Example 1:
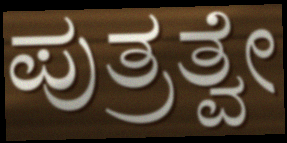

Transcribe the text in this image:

ಪುತ್ರತ್ವೇ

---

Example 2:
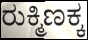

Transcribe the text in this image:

ರುಕ್ಮಿಣಕ್ಕ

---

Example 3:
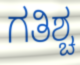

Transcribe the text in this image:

ಗತಿಶ್ಚ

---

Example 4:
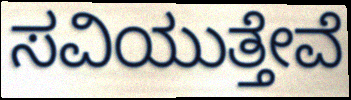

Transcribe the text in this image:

ಸವಿಯುತ್ತೇವೆ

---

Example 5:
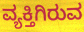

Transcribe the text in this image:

ವ್ಯಕ್ತಿಗಿರುವ